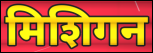
मिशिगन